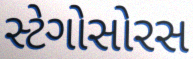
સ્ટેગોસોરસ